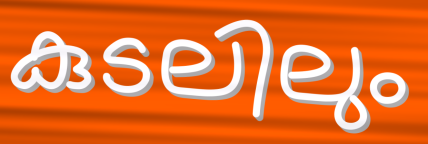
കുടലിലും